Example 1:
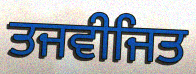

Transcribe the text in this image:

ਤਜਵੀਜਿਤ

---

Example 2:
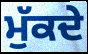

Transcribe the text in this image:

ਮੁੱਕਦੇ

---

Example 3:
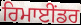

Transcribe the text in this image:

ਰਿਮਾਈਂਡਰ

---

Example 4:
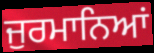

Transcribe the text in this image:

ਜੁਰਮਾਨਿਆਂ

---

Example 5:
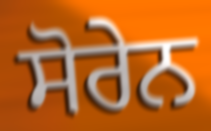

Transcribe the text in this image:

ਸੋਰੇਨ